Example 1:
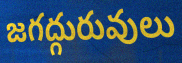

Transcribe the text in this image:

జగద్గురువులు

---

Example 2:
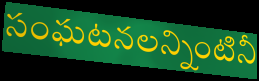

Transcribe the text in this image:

సంఘటనలన్నింటినీ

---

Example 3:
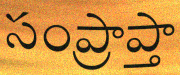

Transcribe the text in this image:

సంప్రాప్తా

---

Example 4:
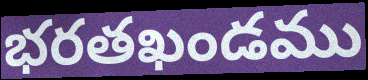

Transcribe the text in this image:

భరతఖండము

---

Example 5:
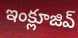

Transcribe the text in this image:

ఇంక్లూజివ్